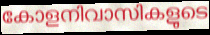
കോളനിവാസികളുടെ